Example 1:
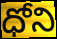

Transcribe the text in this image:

ధోని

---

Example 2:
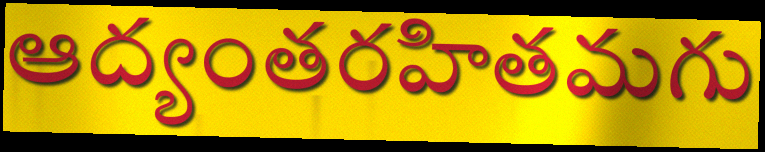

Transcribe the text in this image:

ఆద్యంతరహితమగు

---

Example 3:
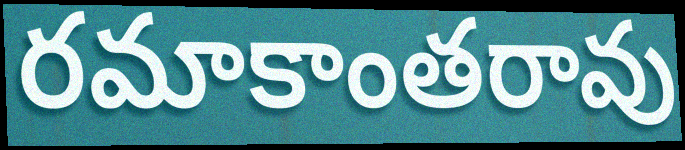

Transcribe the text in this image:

రమాకాంతరావు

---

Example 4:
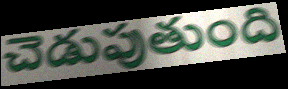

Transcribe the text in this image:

చెడుపుతుంది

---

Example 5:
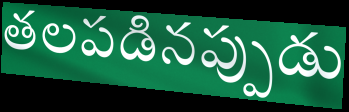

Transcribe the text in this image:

తలపడినప్పుడు